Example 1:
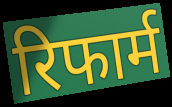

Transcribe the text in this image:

रिफार्म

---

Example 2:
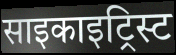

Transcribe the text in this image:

साइकाइट्रिस्ट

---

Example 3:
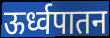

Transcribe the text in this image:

ऊर्ध्वपातन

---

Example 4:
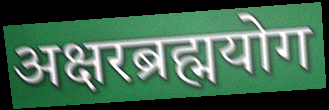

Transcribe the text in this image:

अक्षरब्रह्मयोग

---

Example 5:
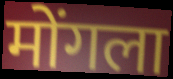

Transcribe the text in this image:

मोंगला